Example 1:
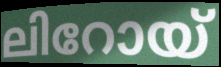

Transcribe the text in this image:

ലിറോയ്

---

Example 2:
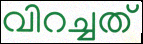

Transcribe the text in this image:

വിറച്ചത്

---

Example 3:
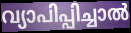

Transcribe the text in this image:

വ്യാപിപ്പിച്ചാൽ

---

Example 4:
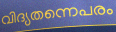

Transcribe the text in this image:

വിദ്യതന്നെപരം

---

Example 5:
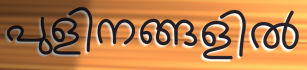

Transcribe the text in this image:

പുളിനങ്ങളിൽ